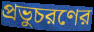
প্রভুচরণের